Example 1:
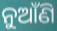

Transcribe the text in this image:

ନୁଆଁଣି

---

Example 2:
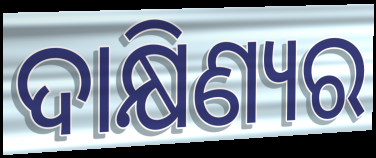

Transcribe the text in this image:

ଦାକ୍ଷିଣ୍ୟର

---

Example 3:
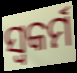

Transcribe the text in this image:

ସ୍ଵକର୍ମ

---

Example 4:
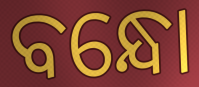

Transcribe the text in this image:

ବନ୍ଧୋ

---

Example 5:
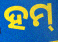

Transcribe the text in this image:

ହମ୍